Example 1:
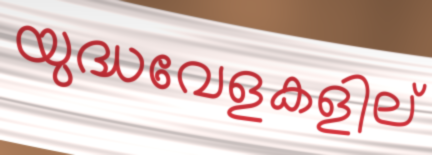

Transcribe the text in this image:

യുദ്ധവേളകളില്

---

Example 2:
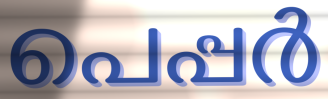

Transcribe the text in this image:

പെപ്പർ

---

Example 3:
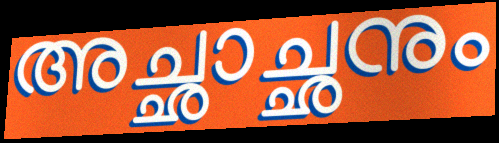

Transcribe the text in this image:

അച്ഛാച്ഛനും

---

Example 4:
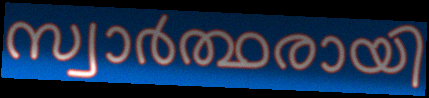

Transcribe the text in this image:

സ്വാർത്ഥരായി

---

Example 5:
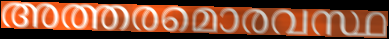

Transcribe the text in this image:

അത്തരമൊരവസ്ഥ